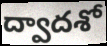
ద్వాదశో